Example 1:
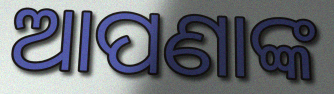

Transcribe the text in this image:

ଆପଣାଙ୍କ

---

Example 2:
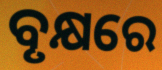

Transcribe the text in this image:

ବୃକ୍ଷରେ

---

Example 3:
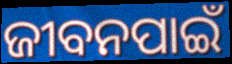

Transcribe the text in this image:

ଜୀବନପାଇଁ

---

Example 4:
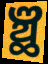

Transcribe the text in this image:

ଞ୍ଛ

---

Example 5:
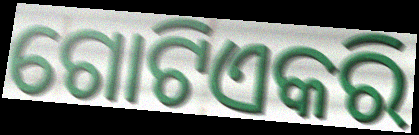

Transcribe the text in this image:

ଗୋଟିଏକରି